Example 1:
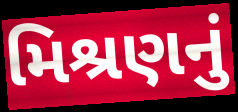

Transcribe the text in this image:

મિશ્રણનું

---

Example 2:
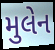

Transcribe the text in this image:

મુલેન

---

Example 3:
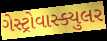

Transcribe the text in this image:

ગેસ્ટ્રોવાસ્ક્યુલર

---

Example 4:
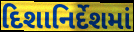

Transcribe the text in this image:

દિશાનિર્દેશમાં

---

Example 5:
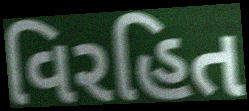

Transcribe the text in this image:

વિરહિત